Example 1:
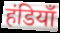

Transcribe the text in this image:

हंडियाँ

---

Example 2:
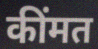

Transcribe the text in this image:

कींमत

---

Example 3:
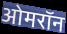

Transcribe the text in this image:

ओमरॉन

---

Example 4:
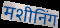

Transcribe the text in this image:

मशीनिंग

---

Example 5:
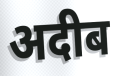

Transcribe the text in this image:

अदीब